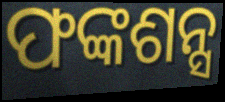
ଫଙ୍କଶନ୍ସ